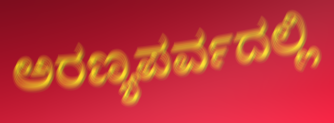
ಅರಣ್ಯಪರ್ವದಲ್ಲಿ